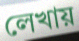
লেখায়